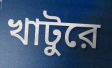
খাটুরে